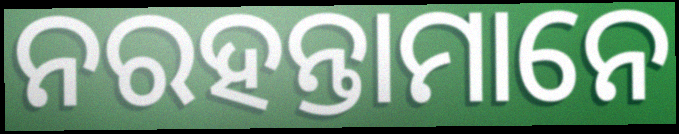
ନରହନ୍ତାମାନେ